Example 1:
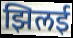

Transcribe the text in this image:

झिलई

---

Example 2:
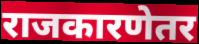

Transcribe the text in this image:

राजकारणेतर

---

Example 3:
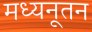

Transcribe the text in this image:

मध्यनूतन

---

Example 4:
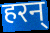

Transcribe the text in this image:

हरन्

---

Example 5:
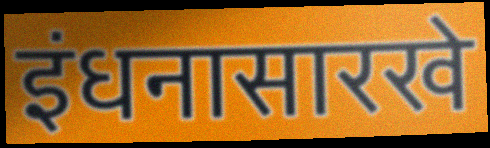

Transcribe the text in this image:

इंधनासारखे